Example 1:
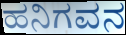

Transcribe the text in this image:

ಹನಿಗವನ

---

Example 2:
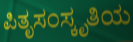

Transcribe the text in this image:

ಪಿತೃಸಂಸ್ಕೃತಿಯ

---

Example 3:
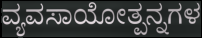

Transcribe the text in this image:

ವ್ಯವಸಾಯೋತ್ಪನ್ನಗಳ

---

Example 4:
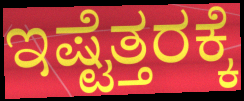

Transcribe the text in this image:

ಇಷ್ಟೆತ್ತರಕ್ಕೆ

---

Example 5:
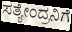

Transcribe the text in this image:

ಸತ್ಯೇಂದ್ರನಿಗೆ